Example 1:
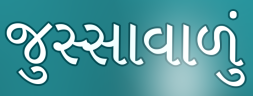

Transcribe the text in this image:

જુસ્સાવાળું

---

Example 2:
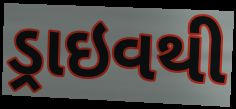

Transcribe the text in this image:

ડ્રાઇવથી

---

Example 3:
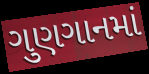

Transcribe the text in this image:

ગુણગાનમાં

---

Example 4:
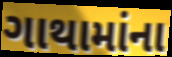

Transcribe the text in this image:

ગાથામાંના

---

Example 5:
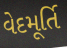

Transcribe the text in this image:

વેદમૂર્તિ